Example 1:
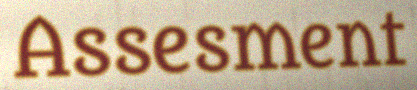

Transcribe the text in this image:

Assesment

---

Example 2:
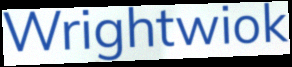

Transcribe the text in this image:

Wrightwiok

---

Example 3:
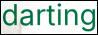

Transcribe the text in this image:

darting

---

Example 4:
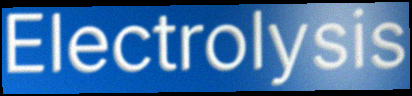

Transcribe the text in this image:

Electrolysis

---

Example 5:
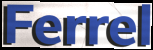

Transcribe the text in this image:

Ferrel